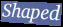
Shaped